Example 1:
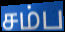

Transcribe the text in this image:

சம்ப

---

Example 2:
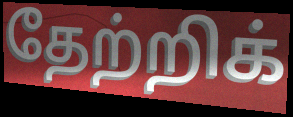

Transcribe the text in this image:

தேற்றிக்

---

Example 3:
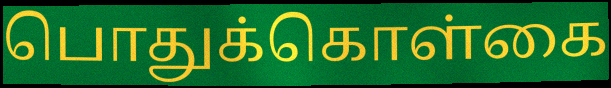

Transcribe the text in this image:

பொதுக்கொள்கை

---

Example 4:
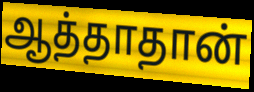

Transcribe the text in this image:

ஆத்தாதான்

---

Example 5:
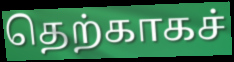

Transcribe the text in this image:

தெற்காகச்